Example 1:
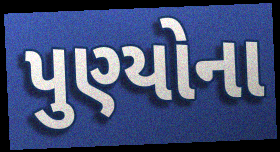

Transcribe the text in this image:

પુણ્યોના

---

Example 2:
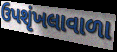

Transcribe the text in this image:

ઉપશૃંખલાવાળા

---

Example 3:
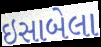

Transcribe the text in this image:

ઇસાબેલા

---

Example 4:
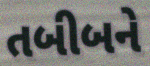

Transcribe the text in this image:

તબીબને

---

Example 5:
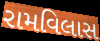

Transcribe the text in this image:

રામવિલાસ